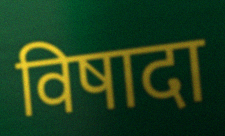
विषादा